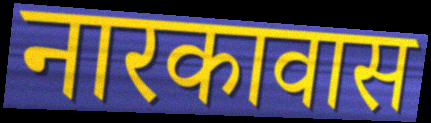
नारकावास